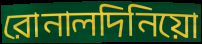
রোনালদিনিয়ো